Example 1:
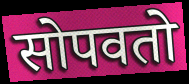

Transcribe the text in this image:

सोपवतो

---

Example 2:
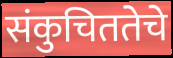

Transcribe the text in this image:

संकुचिततेचे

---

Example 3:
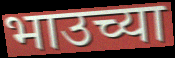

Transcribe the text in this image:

भाउच्या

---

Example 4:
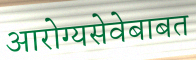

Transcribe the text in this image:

आरोग्यसेवेबाबत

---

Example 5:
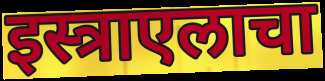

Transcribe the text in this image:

इस्त्राएलाचा